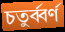
চতুর্ব্বর্ণ